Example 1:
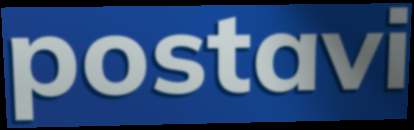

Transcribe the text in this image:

postavi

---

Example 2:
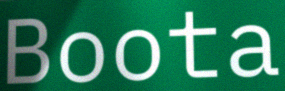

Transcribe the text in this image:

Boota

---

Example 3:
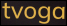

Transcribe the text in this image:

tvoga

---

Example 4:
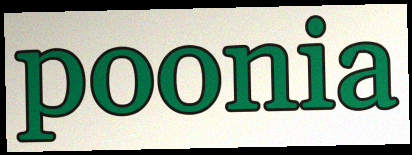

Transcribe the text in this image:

poonia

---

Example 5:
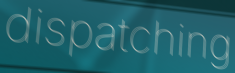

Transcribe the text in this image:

dispatching